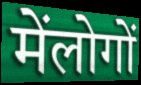
मेंलोगों